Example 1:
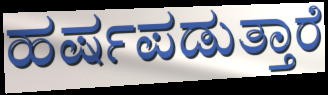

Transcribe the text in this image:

ಹರ್ಷಪಡುತ್ತಾರೆ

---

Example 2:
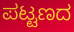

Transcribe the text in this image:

ಪಟ್ಟಣದ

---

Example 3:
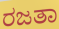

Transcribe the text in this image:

ರಜತಾ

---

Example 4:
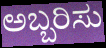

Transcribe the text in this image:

ಅಬ್ಬರಿಸು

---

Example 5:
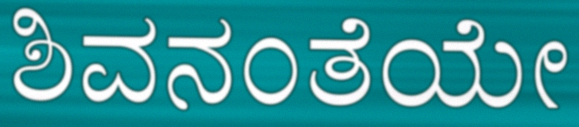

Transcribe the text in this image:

ಶಿವನಂತೆಯೇ